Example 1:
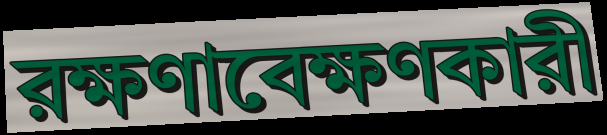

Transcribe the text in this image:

রক্ষণাবেক্ষণকারী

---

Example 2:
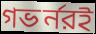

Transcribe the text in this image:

গভর্নরই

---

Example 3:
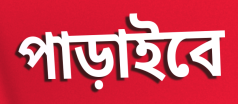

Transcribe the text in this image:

পাড়াইবে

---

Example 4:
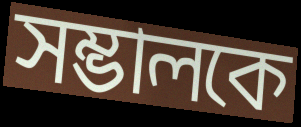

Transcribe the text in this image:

সম্ভালকে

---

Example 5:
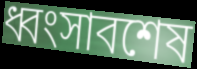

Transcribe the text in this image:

ধ্বংসাবশেষ